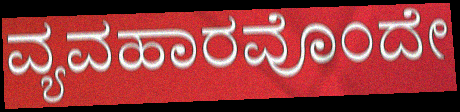
ವ್ಯವಹಾರವೊಂದೇ